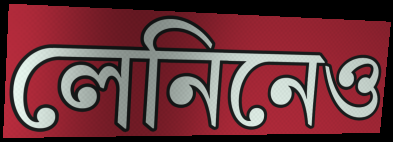
লেনিনেও